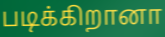
படிக்கிறானா